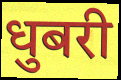
धुबरी